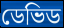
ডেভিড